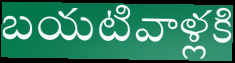
బయటివాళ్లకి